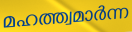
മഹത്ത്വമാർന്ന